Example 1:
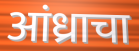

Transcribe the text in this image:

आंध्राचा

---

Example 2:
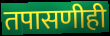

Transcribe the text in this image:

तपासणीही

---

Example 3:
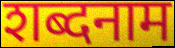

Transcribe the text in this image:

शब्दनाम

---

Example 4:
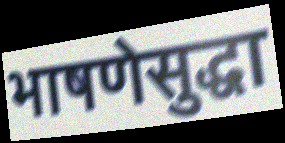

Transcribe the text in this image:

भाषणेसुद्धा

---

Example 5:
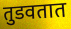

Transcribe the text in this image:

तुडवतात